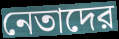
নেতাদের